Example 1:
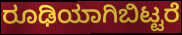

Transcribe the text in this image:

ರೂಢಿಯಾಗಿಬಿಟ್ಟರೆ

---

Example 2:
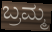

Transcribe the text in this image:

ಬ್ರಮ್ಮ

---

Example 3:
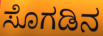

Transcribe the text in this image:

ಸೊಗಡಿನ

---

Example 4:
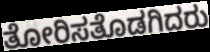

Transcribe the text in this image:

ತೋರಿಸತೊಡಗಿದರು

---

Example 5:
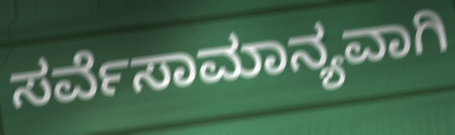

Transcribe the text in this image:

ಸರ್ವೆಸಾಮಾನ್ಯವಾಗಿ